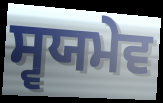
ਸ੍ਵਯਮੇਵ